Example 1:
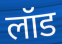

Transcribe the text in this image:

लॉड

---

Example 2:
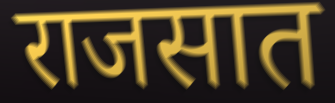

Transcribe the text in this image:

राजसात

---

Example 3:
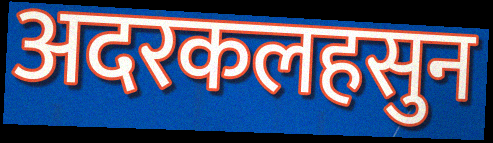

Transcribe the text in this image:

अदरकलहसुन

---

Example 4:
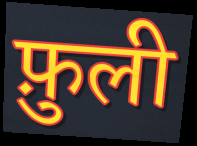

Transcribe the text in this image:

फ़ुली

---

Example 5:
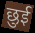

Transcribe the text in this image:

छुई